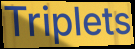
Triplets